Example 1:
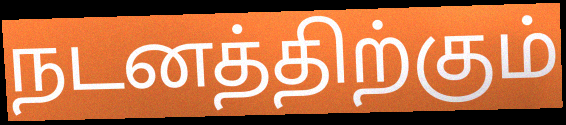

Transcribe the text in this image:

நடனத்திற்கும்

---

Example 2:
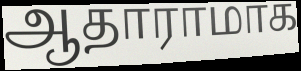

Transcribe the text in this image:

ஆதாராமாக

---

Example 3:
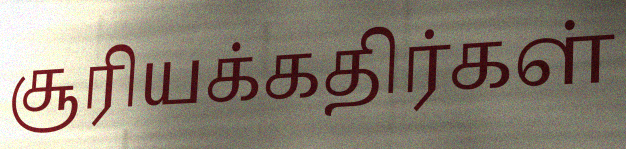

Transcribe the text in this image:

சூரியக்கதிர்கள்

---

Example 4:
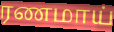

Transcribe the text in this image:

ரணமாய்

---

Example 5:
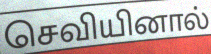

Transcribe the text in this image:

செவியினால்